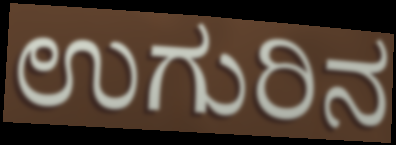
ಉಗುರಿನ